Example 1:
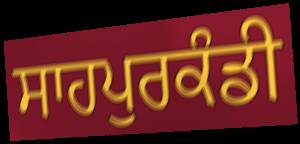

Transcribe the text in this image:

ਸਾਹਪੁਰਕੰਡੀ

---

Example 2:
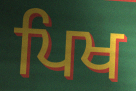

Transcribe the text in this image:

ਪਿਖ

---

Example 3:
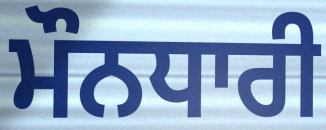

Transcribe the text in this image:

ਮੌਨਧਾਰੀ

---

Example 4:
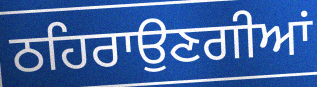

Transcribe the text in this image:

ਠਹਿਰਾਉਣਗੀਆਂ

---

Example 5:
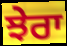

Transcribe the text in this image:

ਝੇਰਾ